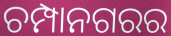
ଚମ୍ପାନଗରର